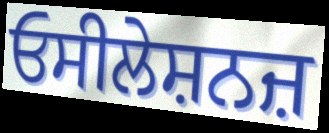
ਓਸੀਲੇਸ਼ਨਜ਼